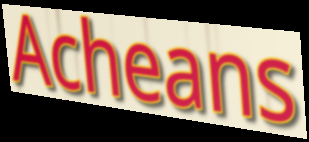
Acheans